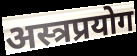
अस्त्रप्रयोग